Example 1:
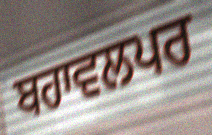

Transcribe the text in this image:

ਬਹਾਵਲਪਰ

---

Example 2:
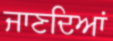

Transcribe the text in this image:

ਜਾਣਦਿਆਂ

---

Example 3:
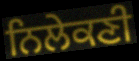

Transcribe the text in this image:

ਨਿਲੇਕਣੀ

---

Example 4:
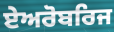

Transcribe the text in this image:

ਏਅਰੋਬਰਿਜ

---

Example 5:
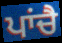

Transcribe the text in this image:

ਪਾਂਚੈ